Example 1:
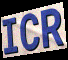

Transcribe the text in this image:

ICR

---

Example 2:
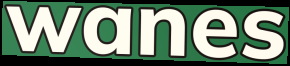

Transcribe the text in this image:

wanes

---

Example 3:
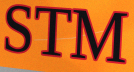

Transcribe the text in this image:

STM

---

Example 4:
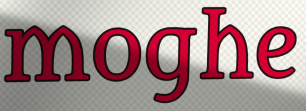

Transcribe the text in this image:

moghe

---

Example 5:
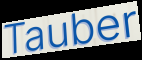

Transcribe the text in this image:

Tauber